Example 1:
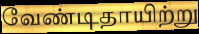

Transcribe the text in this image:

வேண்டிதாயிற்று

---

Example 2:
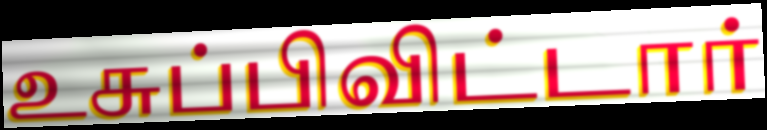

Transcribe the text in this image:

உசுப்பிவிட்டார்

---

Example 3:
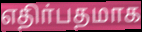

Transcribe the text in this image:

எதிர்பதமாக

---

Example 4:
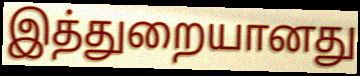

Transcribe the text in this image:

இத்துறையானது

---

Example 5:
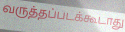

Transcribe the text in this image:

வருத்தப்படக்கூடாது